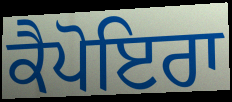
ਕੈਪੋਇਰਾ